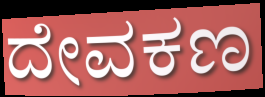
ದೇವಕಣ